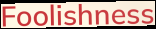
Foolishness